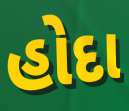
હોદા